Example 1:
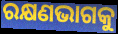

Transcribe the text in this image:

ରକ୍ଷଣଭାଗକୁ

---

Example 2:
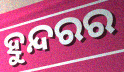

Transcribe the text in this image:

ହୁନ୍ଦରର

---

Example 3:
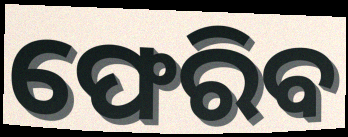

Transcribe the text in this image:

ଫେରିବ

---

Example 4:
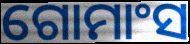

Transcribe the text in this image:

ଗୋମାଂସ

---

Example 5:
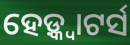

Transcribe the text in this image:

ହେଡ଼୍କ୍ୱାଟର୍ସ